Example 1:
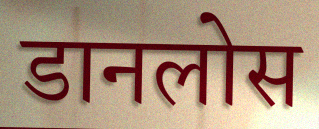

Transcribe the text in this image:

डानलोस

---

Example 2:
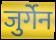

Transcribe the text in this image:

जुर्गेन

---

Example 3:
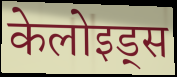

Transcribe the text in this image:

केलोइड्स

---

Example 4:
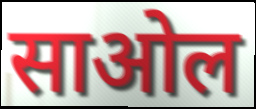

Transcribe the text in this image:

साओल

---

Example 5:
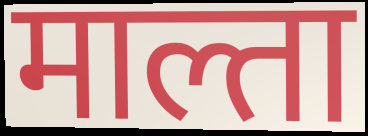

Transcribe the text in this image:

माल्ता